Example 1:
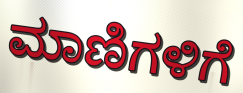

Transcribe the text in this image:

ಮಾಣಿಗಳಿಗೆ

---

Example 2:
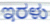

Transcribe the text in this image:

ಇರಳು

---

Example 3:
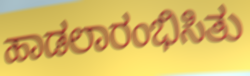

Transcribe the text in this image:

ಹಾಡಲಾರಂಭಿಸಿತು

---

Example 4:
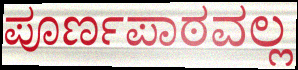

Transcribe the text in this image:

ಪೂರ್ಣಪಾಠವಲ್ಲ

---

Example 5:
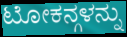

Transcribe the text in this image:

ಟೋಕನ್ಗಳನ್ನು